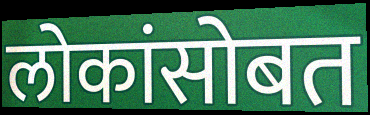
लोकांसोबत